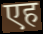
एह